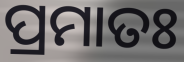
ପ୍ରମାତଃ